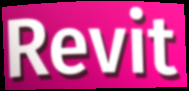
Revit